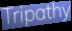
Tripathy